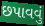
છપાવવું